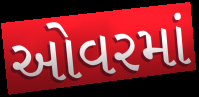
ઓવરમાં